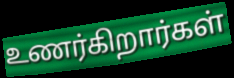
உணர்கிறார்கள்